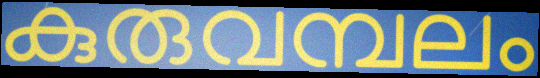
കുരുവമ്പലം